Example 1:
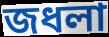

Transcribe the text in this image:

জধলা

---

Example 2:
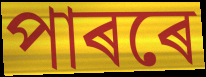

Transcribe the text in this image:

পাৰৰে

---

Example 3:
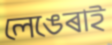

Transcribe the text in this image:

লেঙেৰাই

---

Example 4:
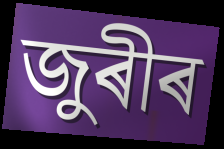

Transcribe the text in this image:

জুৰীৰ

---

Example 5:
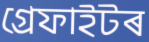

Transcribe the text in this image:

গ্ৰেফাইটৰ